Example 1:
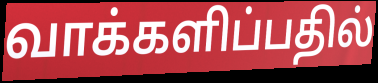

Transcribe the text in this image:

வாக்களிப்பதில்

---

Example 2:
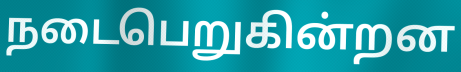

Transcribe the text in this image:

நடைபெறுகின்றன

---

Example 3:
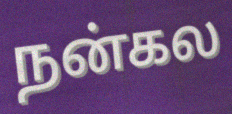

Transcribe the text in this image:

நன்கல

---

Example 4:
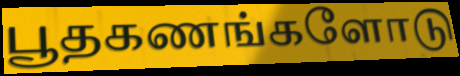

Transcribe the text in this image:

பூதகணங்களோடு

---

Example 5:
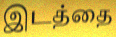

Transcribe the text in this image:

இடத்தை